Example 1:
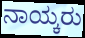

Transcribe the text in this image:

ನಾಯ್ಕರು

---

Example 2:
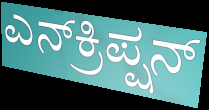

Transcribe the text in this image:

ಎನ್‌ಕ್ರಿಪ್ಷನ್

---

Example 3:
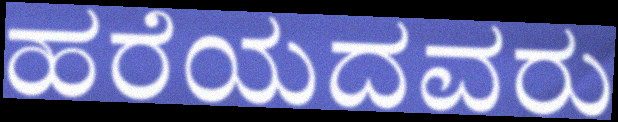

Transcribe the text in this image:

ಹರೆಯದವರು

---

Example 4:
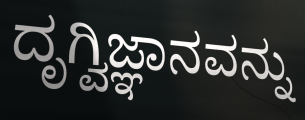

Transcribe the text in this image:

ದೃಗ್ವಿಜ್ಞಾನವನ್ನು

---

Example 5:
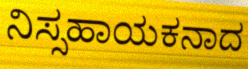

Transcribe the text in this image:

ನಿಸ್ಸಹಾಯಕನಾದ